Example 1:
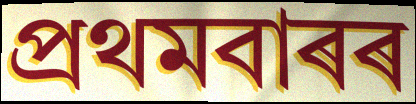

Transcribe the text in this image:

প্ৰথমবাৰৰ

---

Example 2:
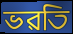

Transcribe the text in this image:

ভৱতি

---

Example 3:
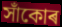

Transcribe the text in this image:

সাঁকোৰ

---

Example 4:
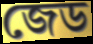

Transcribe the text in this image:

জেড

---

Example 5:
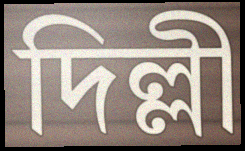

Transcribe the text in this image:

দিল্লী